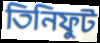
তিনিফুট